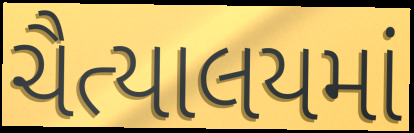
ચૈત્યાલયમાં